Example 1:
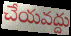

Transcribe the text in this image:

చేయవద్దు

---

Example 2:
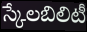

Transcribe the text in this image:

స్కేలబిలిటీ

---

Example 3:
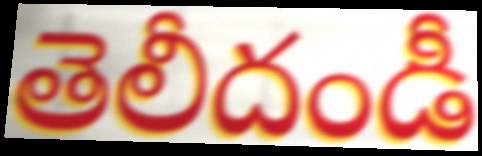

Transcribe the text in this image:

తెలీదండీ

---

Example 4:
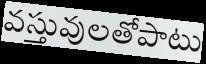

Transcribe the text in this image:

వస్తువులతోపాటు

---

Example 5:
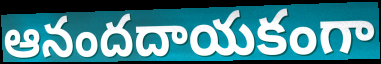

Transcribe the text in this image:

ఆనందదాయకంగా